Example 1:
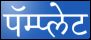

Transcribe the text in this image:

पॅम्प्लेट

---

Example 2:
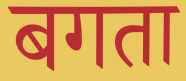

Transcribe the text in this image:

बगता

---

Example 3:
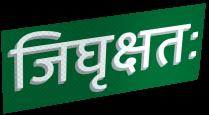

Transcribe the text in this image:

जिघृक्षतः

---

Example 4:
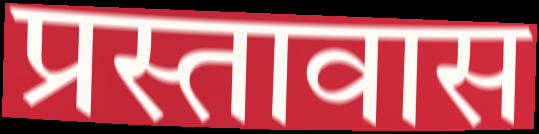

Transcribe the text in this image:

प्रस्तावास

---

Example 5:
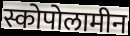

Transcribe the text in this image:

स्कोपोलामीन